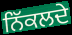
ਨਿੱਕਲਦੇ